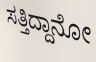
ಸತ್ತಿದ್ದಾನೋ